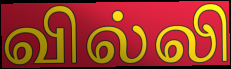
வில்லி